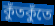
কুঁতকুঁতে